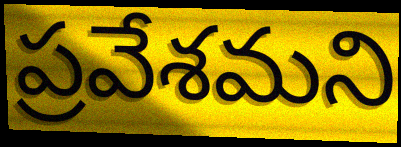
ప్రవేశమని